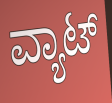
ವ್ಯಾಟ್